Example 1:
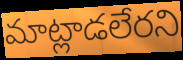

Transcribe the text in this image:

మాట్లాడలేరని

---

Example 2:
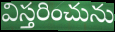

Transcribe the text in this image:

విస్తరించును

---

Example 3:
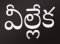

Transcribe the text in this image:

వీల్లేక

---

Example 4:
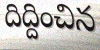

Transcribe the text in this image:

దిద్దించిన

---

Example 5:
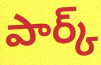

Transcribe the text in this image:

పార్క్